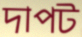
দাপট